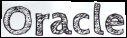
Oracle